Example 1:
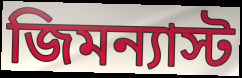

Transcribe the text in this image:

জিমন্যাস্ট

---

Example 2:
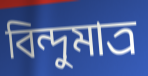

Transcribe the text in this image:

বিন্দুমাত্র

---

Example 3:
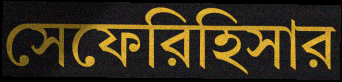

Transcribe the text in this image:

সেফেরিহিসার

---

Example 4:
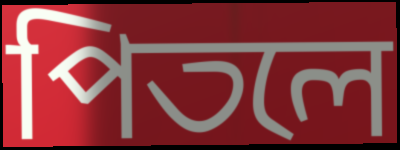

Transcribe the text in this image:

পিতলে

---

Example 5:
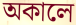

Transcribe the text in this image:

অকালে